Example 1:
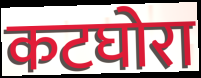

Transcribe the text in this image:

कटघोरा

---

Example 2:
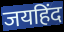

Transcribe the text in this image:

जयहिंद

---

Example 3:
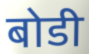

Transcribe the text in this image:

बोडी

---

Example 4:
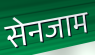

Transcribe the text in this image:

सेनजाम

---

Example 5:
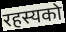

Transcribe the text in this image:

रहस्यको